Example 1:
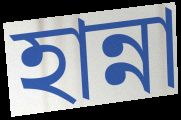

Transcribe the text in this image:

হান্না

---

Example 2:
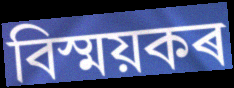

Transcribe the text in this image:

বিস্ময়কৰ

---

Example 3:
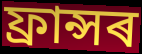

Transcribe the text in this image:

ফ্ৰান্সৰ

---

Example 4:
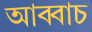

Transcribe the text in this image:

আব্বাচ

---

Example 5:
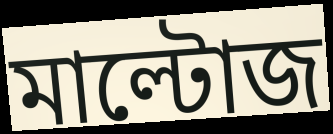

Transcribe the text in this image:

মাল্টোজ